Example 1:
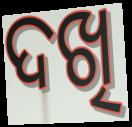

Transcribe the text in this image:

ଦଖି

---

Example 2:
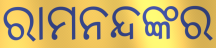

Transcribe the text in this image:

ରାମନନ୍ଦଙ୍କର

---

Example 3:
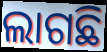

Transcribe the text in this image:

ଲାଗଛି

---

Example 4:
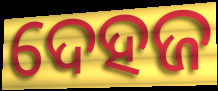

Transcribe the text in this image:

ଦେହଜ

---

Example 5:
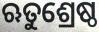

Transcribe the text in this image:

ଋତୁଶ୍ରେଷ୍ଠ